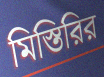
মিস্তিরির